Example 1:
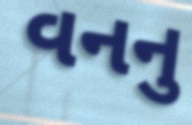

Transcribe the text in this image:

વનનુ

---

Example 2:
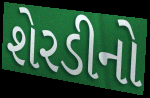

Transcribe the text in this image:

શેરડીનો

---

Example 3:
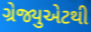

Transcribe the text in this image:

ગ્રેજ્યુએટથી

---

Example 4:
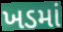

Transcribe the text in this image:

ખડમાં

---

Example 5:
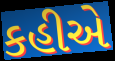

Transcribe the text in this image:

કહીએ